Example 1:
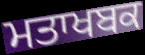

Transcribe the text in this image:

ਮਤਾਖਬਕ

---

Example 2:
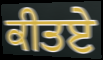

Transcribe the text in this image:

ਕੀਤਏ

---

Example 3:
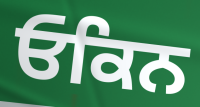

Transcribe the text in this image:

ਓਕਿਨ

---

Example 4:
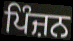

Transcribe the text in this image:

ਪਿੰਜ਼ਨ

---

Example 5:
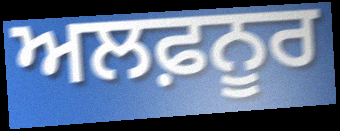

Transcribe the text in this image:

ਅਲਫ਼ਨੂਰ